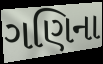
ગણિના